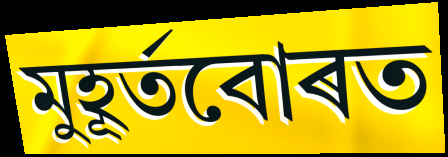
মুহূৰ্তবোৰত